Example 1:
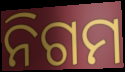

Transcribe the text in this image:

ନିଗମ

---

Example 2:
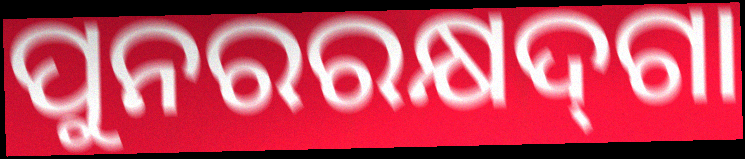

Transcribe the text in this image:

ପୁନରରକ୍ଷଦ୍‌ଗା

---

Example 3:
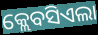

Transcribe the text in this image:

କ୍ଲେବସିଏଲା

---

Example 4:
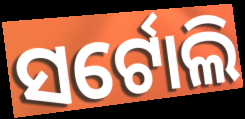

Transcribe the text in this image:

ସର୍ଟୋଲି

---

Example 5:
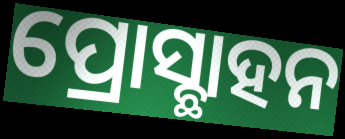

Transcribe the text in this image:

ପ୍ରୋସ୍ଛାହନ